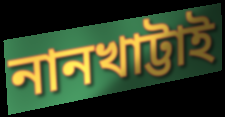
নানখাট্টাই